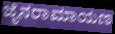
ಜೈನರಾಮಾಯಣ